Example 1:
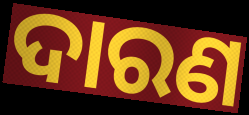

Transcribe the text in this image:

ଦାରଣ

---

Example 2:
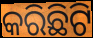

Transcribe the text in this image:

କରିଛିଟି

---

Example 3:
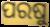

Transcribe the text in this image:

ପରଷୁ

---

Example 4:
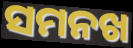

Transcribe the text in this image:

ସମନଖ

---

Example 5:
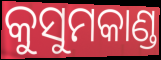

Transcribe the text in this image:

କୁସୁମକାଣ୍ଡ